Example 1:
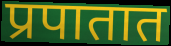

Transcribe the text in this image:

प्रपातात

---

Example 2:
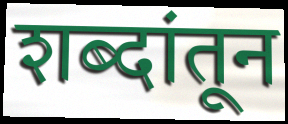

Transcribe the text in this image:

शब्दांतून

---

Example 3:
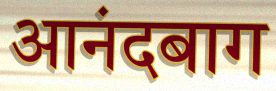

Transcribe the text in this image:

आनंदबाग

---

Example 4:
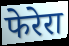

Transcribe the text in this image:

फेरेरा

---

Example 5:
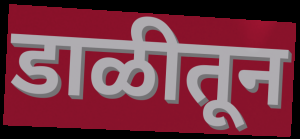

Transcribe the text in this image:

डाळीतून